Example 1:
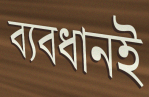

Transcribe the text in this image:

ব্যবধানই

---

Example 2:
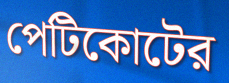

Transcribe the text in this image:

পেটিকোটের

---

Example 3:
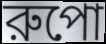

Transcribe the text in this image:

রুপো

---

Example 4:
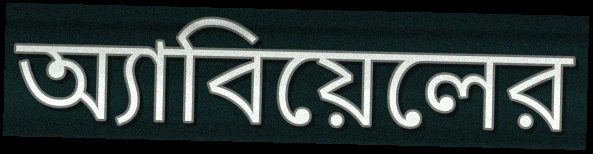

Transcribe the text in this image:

অ্যাবিয়েলের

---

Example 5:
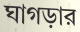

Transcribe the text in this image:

ঘাগড়ার